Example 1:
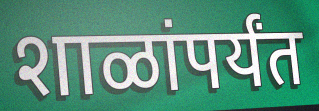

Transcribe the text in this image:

शाळांपर्यंत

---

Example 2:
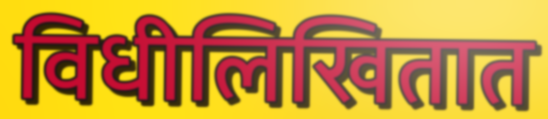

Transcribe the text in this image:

विधीलिखितात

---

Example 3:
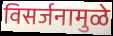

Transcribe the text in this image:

विसर्जनामुळे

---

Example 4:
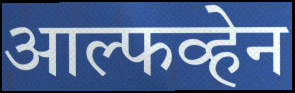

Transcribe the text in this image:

आल्फव्हेन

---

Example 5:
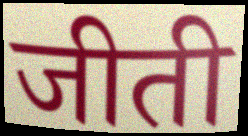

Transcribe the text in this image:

जीती